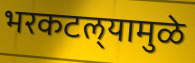
भरकटल्यामुळे